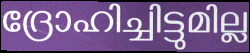
ദ്രോഹിച്ചിട്ടുമില്ല